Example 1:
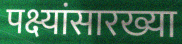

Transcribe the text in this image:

पक्ष्यांसारख्या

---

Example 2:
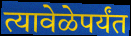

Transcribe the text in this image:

त्यावेळेपर्यंत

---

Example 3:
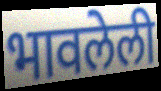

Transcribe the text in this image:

भावलेली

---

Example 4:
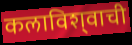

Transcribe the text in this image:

कलाविश्वाची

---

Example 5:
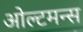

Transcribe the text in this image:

ओल्टमन्स